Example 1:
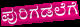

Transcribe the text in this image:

ಪುರಿಗಡಲೆಗೆ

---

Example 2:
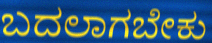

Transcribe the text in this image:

ಬದಲಾಗಬೇಕು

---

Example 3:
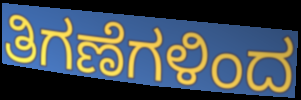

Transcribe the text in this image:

ತಿಗಣೆಗಳಿಂದ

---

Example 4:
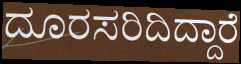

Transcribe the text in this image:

ದೂರಸರಿದಿದ್ದಾರೆ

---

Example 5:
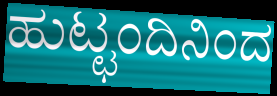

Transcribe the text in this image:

ಹುಟ್ಟಂದಿನಿಂದ